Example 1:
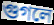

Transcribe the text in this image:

গুগলে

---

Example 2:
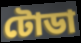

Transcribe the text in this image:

টোডা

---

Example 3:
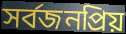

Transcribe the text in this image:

সর্বজনপ্রিয়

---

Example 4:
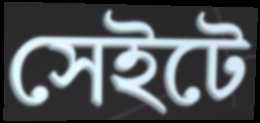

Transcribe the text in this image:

সেইটে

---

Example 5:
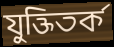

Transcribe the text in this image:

যুক্তিতর্ক